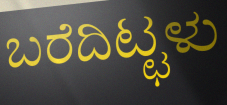
ಬರೆದಿಟ್ಟಳು